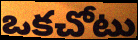
ఒకచోటు